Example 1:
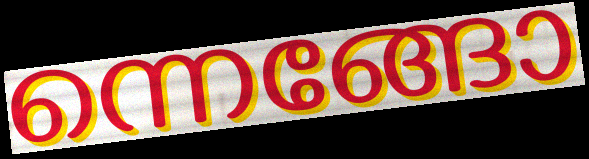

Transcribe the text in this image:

ന്നെങ്ങോ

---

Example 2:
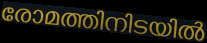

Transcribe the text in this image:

രോമത്തിനിടയിൽ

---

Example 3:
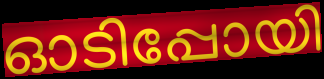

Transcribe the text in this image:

ഓടിപ്പോയി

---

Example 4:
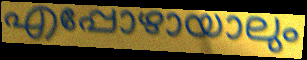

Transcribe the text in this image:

എപ്പോഴായാലും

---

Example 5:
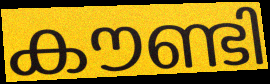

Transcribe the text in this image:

കൗണ്ടി